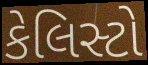
કેલિસ્ટો